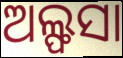
ଅଲ୍ଫସା